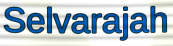
Selvarajah